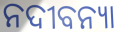
ନଦୀବନ୍ୟା